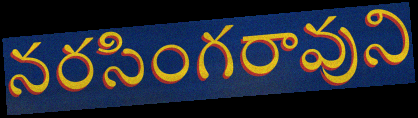
నరసింగరావుని